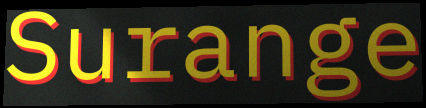
Surange